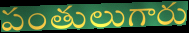
పంతులుగారు